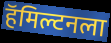
हॅमिल्टनला